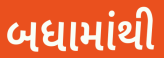
બધામાંથી